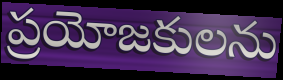
ప్రయోజకులను